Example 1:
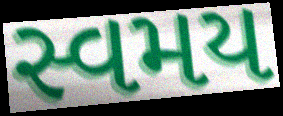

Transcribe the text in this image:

સ્વમય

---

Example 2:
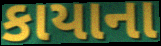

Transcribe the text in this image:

કાયાના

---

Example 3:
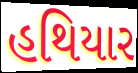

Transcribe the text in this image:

હથિયાર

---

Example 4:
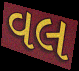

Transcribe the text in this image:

વલ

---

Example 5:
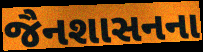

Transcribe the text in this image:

જૈનશાસનના